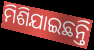
ମିଶିଯାଇଛନ୍ତି